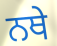
ਨਥੇ